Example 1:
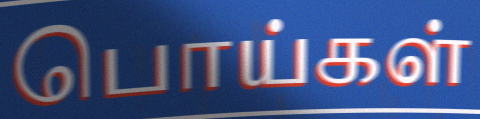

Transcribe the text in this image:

பொய்கள்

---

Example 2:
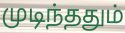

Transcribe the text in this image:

முடிந்ததும்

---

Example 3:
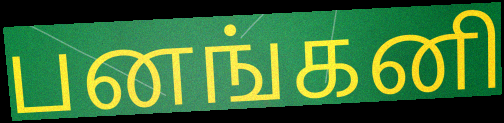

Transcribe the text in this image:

பனங்கனி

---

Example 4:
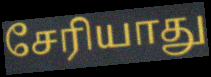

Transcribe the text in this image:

சேரியாது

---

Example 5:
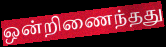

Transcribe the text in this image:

ஒன்றிணைந்தது